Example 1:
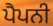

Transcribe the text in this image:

ਪੈਪਨੀ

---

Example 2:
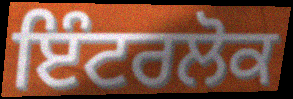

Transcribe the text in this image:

ਇੰਟਰਲੋਕ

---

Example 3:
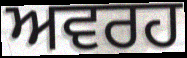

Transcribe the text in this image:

ਅਵਰਹ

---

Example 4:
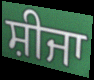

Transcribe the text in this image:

ਸ਼ੀਜਾ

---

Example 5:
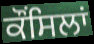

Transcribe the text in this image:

ਕੌਂਸਿਲਾਂ